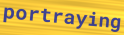
portraying